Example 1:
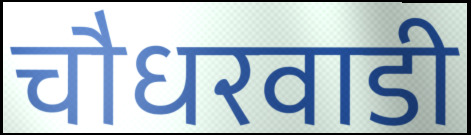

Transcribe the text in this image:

चौधरवाडी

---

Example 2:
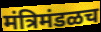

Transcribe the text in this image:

मंत्रिमंडळच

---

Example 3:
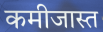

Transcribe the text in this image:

कमीजास्त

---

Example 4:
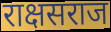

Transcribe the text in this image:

राक्षसराज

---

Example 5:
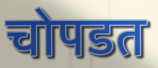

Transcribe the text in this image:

चोपडत